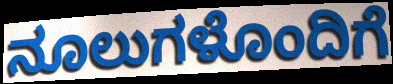
ನೂಲುಗಳೊಂದಿಗೆ